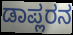
ಡಾಪ್ಲರನ